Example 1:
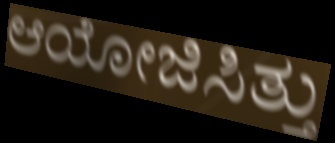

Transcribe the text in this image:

ಆಯೋಜಿಸಿತ್ತು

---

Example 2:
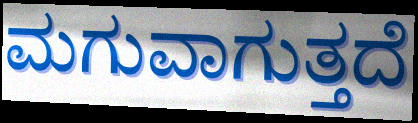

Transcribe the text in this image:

ಮಗುವಾಗುತ್ತದೆ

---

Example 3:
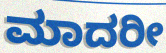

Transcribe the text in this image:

ಮಾದರೀ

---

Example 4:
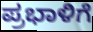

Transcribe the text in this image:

ಪ್ರಭಾಳಿಗೆ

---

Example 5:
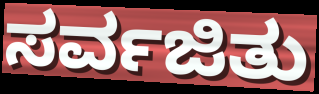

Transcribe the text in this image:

ಸರ್ವಜಿತು